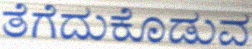
ತೆಗೆದುಕೊಡುವ